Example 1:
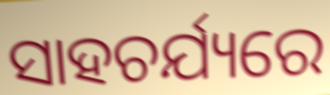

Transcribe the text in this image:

ସାହଚର୍ଯ୍ୟରେ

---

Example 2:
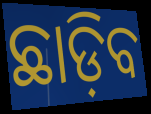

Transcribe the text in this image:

ଛାଡ଼ିବ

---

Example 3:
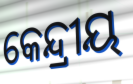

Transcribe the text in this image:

କେନ୍ଦ୍ରୀୟ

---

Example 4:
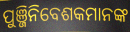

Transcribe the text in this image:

ପୁଞ୍ଜିନିବେଶକମାନଙ୍କ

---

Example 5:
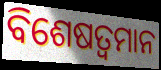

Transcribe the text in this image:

ବିଶେଷତ୍ଵମାନ